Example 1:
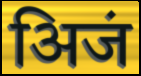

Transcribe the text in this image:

अिजं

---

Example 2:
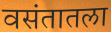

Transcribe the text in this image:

वसंतातला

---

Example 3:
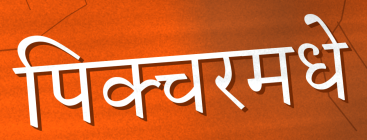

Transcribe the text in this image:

पिक्चरमधे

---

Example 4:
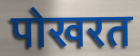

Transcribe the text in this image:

पोखरत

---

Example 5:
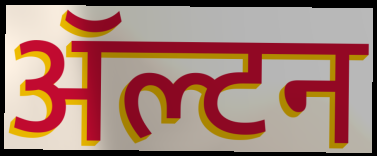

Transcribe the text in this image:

ॲल्टन